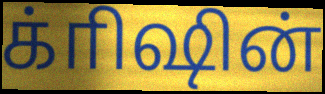
க்ரிஷின்